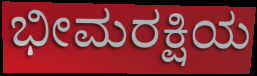
ಭೀಮರಕ್ಷಿಯ